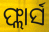
ଫ୍ଲାର୍ସ